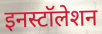
इनस्टॉलेशन